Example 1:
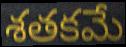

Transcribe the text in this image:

శతకమే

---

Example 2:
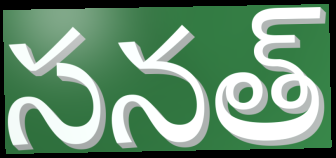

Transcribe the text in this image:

సనత్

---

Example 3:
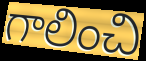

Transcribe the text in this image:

గాలించి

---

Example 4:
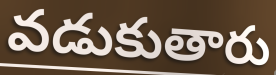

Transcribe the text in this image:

వడుకుతారు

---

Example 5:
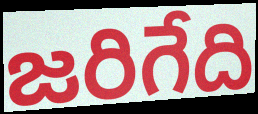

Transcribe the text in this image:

జరిగేది